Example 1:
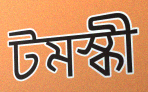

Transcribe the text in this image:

টমস্কী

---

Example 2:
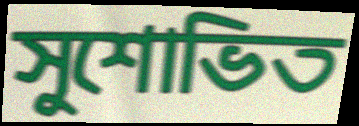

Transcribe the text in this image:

সুশোভিত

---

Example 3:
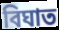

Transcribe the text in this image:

বিঘাত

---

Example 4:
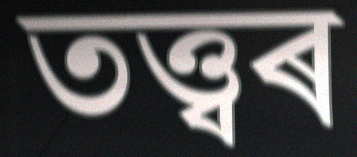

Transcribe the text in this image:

তত্ত্বৰ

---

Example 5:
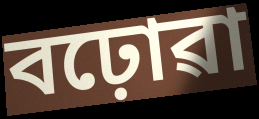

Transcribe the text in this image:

বঢ়োৱা